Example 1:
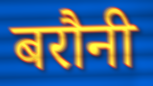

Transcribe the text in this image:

बरौनी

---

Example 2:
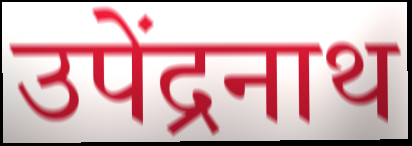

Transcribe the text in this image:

उपेंद्रनाथ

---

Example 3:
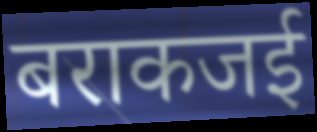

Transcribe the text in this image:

बराकजई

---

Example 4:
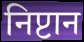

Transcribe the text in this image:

निप्टान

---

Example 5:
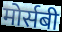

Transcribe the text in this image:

मोर्सबी